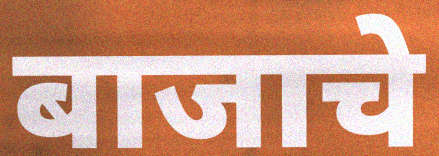
बाजाचे